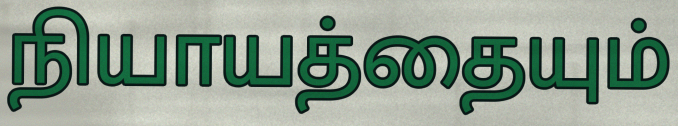
நியாயத்தையும்